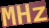
MHz